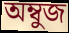
অম্বুজ